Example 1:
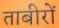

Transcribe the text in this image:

ताबीरों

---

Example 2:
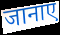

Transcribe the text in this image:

जानाए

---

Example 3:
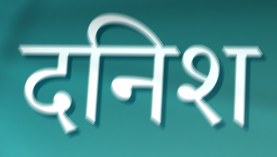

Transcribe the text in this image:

दनिश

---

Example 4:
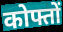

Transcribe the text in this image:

कोफ्तों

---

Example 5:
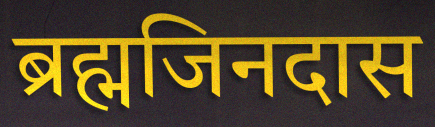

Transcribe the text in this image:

ब्रह्मजिनदास